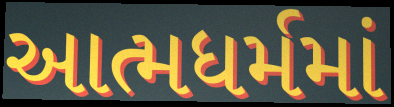
આત્મધર્મમાં